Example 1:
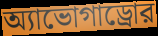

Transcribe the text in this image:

অ্যাভোগাড্রোর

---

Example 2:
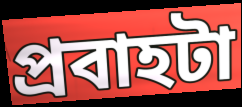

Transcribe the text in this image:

প্রবাহটা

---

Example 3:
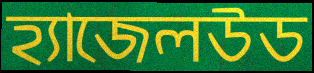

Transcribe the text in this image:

হ্যাজেলউড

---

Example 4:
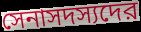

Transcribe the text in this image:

সেনাসদস্যদের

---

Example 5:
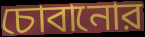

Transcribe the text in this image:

চোবানোর